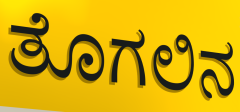
ತೊಗಲಿನ